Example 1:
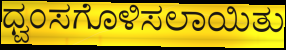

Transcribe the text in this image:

ಧ್ವಂಸಗೊಳಿಸಲಾಯಿತು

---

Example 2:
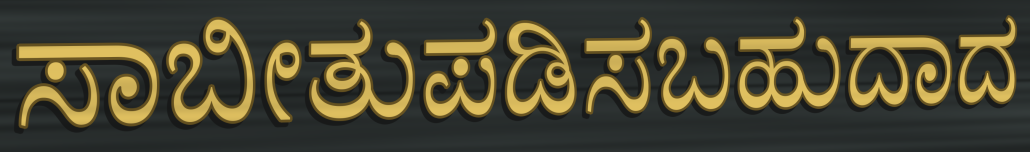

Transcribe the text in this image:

ಸಾಬೀತುಪಡಿಸಬಹುದಾದ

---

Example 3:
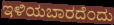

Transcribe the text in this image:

ಇಳಿಯಬಾರದೆಂದು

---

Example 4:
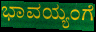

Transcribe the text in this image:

ಭಾವಯ್ಯಂಗೆ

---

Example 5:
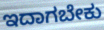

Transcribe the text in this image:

ಇದಾಗಬೇಕು